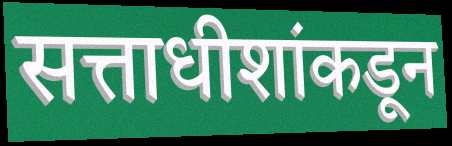
सत्ताधीशांकडून